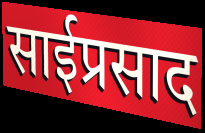
साईप्रसाद